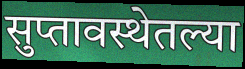
सुप्तावस्थेतल्या